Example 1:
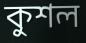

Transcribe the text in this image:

কুশল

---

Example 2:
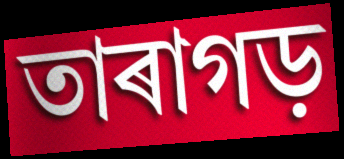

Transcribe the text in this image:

তাৰাগড়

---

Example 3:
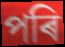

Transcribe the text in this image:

পৰি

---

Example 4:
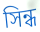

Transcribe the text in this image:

সিন্ধ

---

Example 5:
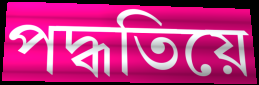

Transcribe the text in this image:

পদ্ধতিয়ে